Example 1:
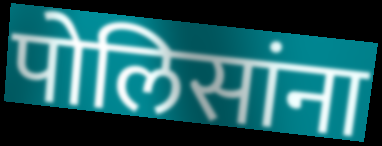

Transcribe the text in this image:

पोलिसांना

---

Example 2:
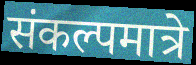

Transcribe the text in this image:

संकल्पमात्रे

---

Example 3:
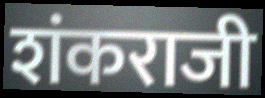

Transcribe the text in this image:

शंकराजी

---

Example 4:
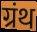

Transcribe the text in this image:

ग्रंथ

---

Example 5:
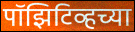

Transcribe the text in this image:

पॉझिटिव्हच्या